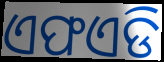
ଏଫଏଡି